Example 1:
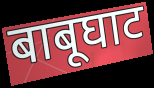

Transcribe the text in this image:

बाबूघाट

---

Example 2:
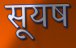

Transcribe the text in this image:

सूयष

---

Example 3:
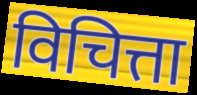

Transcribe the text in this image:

विचित्ता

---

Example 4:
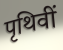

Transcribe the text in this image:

पृथिवीं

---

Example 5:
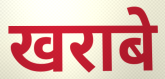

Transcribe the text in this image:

खराबे